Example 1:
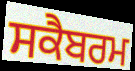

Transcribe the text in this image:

ਸਕੈਬਰਮ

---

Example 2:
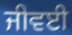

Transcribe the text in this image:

ਜੀਵਈ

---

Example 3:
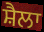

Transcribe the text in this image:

ਸ਼ੈਲਾ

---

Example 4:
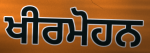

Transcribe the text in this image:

ਖੀਰਮੋਹਨ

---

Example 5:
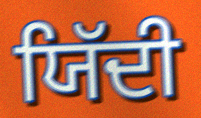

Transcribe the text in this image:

ਯਿੱਦੀ